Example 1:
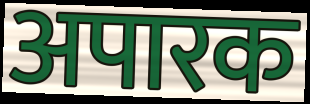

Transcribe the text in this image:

अपारक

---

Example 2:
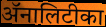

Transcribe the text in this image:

ॲनालिटीका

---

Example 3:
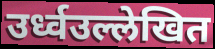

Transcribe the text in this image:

उर्ध्वउल्लेखित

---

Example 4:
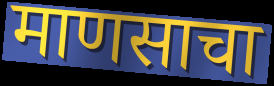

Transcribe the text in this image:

माणसाचा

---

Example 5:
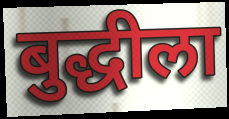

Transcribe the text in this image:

बुद्धीला